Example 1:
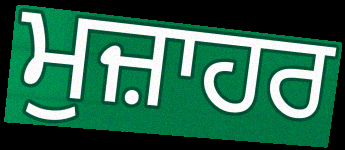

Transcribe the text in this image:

ਮੁਜ਼ਾਹਰ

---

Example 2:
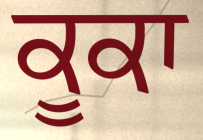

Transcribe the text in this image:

ਕੂਕਾ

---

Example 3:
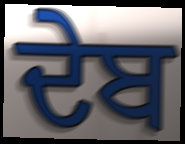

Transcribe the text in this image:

ਦੇਬ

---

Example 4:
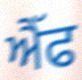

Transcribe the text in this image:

ਐੈੱਫ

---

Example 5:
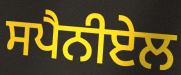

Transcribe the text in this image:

ਸਪੈਨੀਏਲ